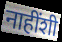
नाहींशी